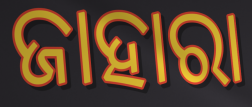
ଜାହାରା